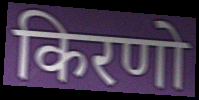
किरणो